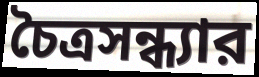
চৈত্রসন্ধ্যার